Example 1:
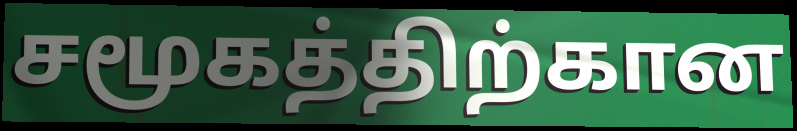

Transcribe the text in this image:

சமூகத்திற்கான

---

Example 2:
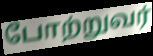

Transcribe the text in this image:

போற்றுவர்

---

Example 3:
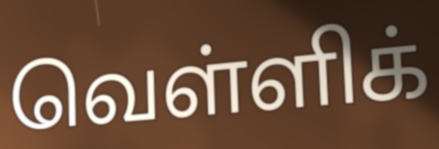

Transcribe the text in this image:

வெள்ளிக்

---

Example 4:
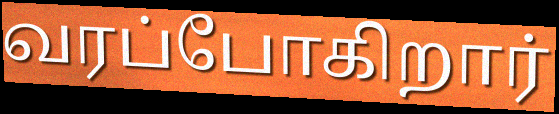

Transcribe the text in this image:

வரப்போகிறார்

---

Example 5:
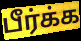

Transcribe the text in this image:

பீர்க்க